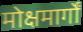
मोक्षमार्गों